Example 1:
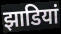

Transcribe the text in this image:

झाडियां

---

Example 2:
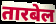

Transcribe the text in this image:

तारबेल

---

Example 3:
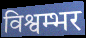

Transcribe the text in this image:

विश्वम्भर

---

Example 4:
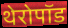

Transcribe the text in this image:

थेरोपॉड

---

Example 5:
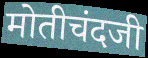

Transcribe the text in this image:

मोतीचंदजी